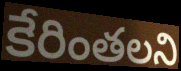
కేరింతలని